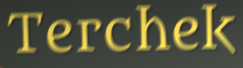
Terchek